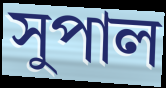
সুপাল